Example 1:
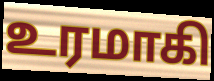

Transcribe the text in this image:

உரமாகி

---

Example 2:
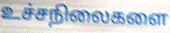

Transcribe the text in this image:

உச்சநிலைகளை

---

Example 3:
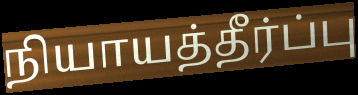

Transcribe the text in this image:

நியாயத்தீர்ப்பு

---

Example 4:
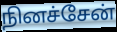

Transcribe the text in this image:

நினச்சேன்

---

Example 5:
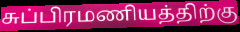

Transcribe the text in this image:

சுப்பிரமணியத்திற்கு